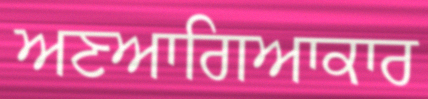
ਅਣਆਗਿਆਕਾਰ